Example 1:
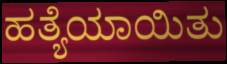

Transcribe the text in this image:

ಹತ್ಯೆಯಾಯಿತು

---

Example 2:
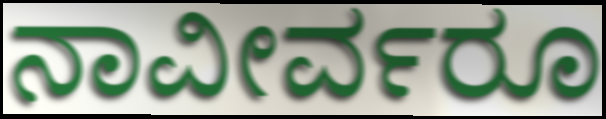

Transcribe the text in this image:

ನಾವೀರ್ವರೂ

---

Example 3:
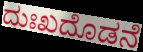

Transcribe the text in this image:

ದುಃಖದೊಡನೆ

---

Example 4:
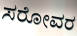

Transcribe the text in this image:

ಸರೋವರ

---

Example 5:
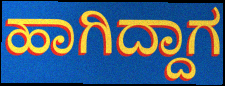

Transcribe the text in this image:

ಹಾಗಿದ್ದಾಗ